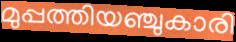
മുപ്പത്തിയഞ്ചുകാരി